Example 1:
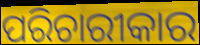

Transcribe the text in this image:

ପରିଚାରୀକାର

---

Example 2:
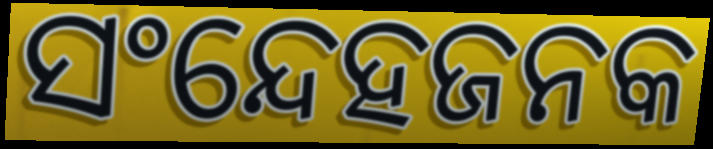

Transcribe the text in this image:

ସଂନ୍ଦେହଜନକ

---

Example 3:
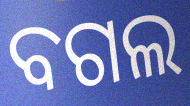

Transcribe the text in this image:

ବଗଲ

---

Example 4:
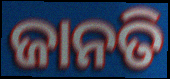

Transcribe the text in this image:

ଜାନତି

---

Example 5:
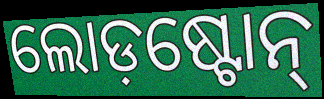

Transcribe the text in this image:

ଲୋଡ଼ଷ୍ଟୋନ୍